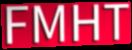
FMHT